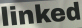
linked